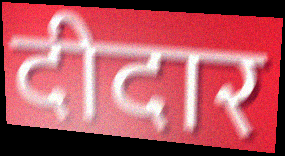
दीदार